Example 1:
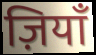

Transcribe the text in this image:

ज़ियाँ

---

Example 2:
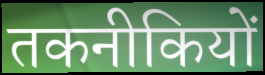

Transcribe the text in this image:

तकनीकियों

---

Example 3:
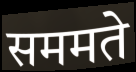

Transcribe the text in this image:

सममते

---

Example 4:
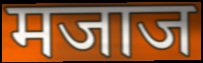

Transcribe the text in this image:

मजाज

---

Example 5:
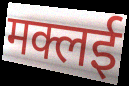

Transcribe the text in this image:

मक्लई